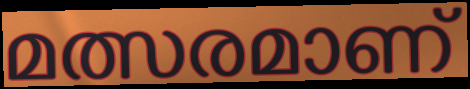
മത്സരമാണ്